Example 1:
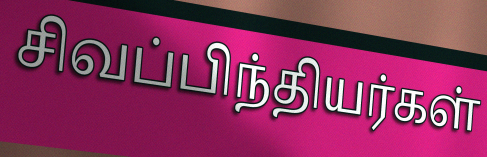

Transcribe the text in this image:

சிவப்பிந்தியர்கள்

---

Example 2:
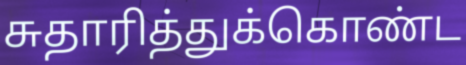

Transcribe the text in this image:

சுதாரித்துக்கொண்ட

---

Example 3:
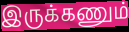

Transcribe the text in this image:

இருக்கணும்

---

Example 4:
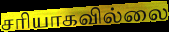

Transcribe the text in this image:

சரியாகவில்லை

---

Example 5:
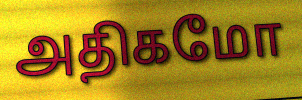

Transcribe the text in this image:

அதிகமோ